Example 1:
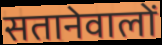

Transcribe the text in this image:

सतानेवालों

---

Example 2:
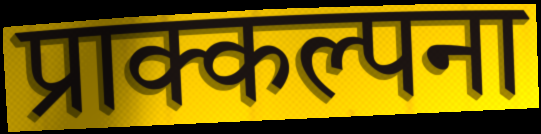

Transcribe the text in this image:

प्राक्कल्पना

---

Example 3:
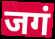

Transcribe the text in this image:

जगं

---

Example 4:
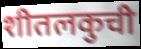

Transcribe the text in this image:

शीतलकुची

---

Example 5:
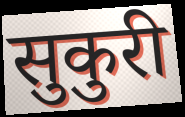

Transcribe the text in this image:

सुकुरी